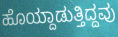
ಹೊಯ್ದಾಡುತ್ತಿದ್ದವು